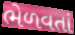
ભેળવતાં